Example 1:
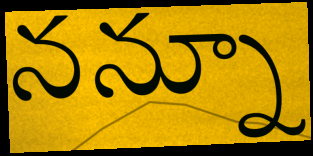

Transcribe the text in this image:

నన్నూ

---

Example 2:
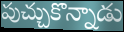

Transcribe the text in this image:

పుచ్చుకొన్నాడు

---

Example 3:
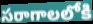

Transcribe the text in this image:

సరాగాలలోకి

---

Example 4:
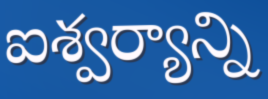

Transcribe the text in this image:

ఐశ్వర్యాన్ని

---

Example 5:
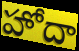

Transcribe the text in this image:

హోదా